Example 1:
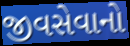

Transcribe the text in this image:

જીવસેવાનો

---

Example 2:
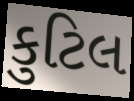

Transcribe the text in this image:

કુટિલ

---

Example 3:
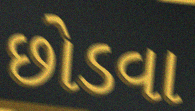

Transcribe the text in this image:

છોડવા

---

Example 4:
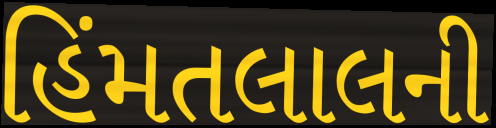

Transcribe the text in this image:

હિંમતલાલની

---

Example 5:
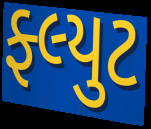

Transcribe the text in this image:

ફ્લ્યુટ